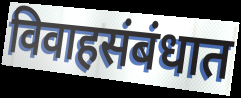
विवाहसंबंधात